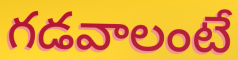
గడవాలంటే